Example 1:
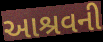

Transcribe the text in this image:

આશ્રવની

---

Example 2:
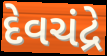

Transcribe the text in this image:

દેવચંદ્રે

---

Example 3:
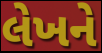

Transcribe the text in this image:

લેખને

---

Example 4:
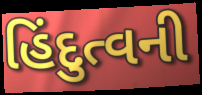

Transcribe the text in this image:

હિંદુત્વની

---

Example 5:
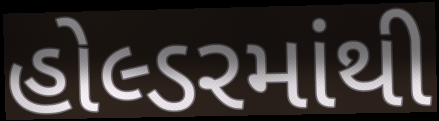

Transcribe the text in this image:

હોલ્ડરમાંથી